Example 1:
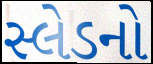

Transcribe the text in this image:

સ્લેડનો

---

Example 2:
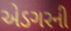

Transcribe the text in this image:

એડગરની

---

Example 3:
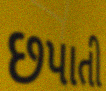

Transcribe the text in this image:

છપાતી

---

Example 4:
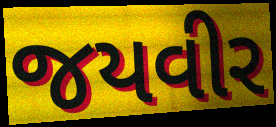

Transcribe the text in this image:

જયવીર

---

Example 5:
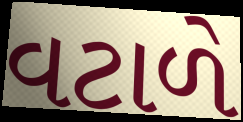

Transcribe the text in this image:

વટાળે